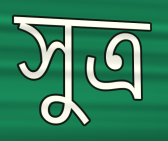
সুত্ৰ